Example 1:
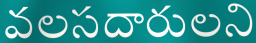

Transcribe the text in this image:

వలసదారులని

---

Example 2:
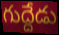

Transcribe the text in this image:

గుద్దేడు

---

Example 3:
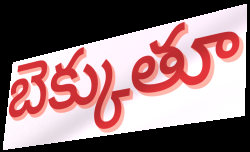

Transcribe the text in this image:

బెక్కుతూ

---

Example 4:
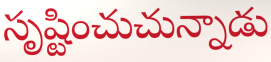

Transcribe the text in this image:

సృష్టించుచున్నాడు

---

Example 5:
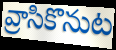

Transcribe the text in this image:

వ్రాసికొనుట